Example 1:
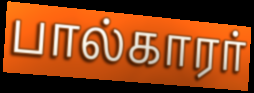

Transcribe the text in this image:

பால்காரர்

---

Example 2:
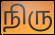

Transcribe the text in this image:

நிரு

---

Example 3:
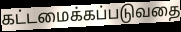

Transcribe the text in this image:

கட்டமைக்கப்படுவதை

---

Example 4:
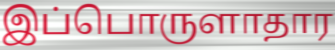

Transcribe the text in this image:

இப்பொருளாதார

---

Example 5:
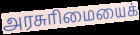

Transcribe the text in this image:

அரசுரிமையைக்